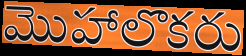
మొహాలొకరు